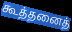
கூத்தனைத்